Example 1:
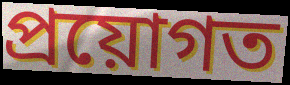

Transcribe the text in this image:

প্ৰয়োগত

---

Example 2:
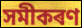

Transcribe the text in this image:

সমীকৰণ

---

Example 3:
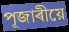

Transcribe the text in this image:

পূজাৰীয়ে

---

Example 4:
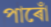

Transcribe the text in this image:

পাৰোঁ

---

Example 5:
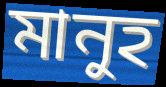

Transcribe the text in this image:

মানুহ